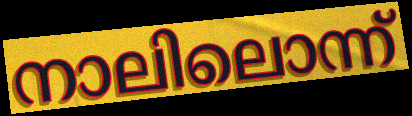
നാലിലൊന്ന്